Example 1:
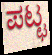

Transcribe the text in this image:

ಪಟ್ಟ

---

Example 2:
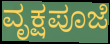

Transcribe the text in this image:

ವೃಕ್ಷಪೂಜೆ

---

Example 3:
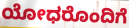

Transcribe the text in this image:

ಯೋಧರೊಂದಿಗೆ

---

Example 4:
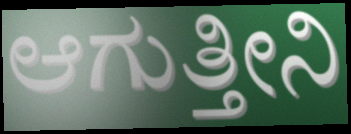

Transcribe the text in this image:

ಆಗುತ್ತೀನಿ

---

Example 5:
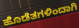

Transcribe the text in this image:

ಹೊಡೆತಗಳಿಂದಾಗಿ